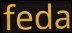
feda